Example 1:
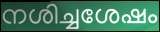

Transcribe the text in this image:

നശിച്ചശേഷം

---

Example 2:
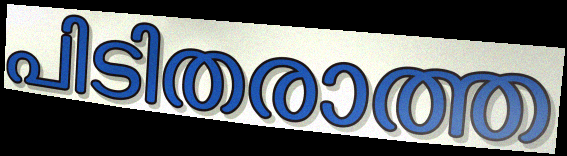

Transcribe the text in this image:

പിടിതരാത്ത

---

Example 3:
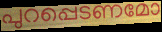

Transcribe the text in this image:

പുറപ്പെടണമോ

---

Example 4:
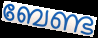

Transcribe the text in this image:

ബേണ്ട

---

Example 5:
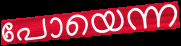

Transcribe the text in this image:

പോയെന്ന